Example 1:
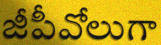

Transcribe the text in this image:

జీపీవోలుగా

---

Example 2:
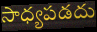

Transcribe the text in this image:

సాధ్యపడదు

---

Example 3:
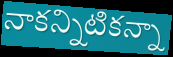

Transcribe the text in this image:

నాకన్నిటికన్నా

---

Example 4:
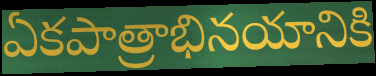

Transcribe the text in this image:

ఏకపాత్రాభినయానికి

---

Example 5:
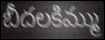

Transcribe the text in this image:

బీదలకిమ్ము